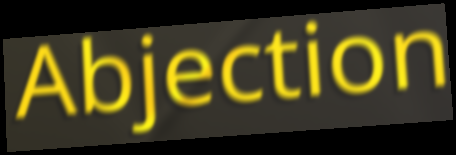
Abjection